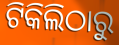
ଟିକିଲିଠାରୁ